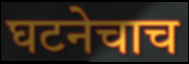
घटनेचाच